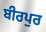
ਬੀਰਪੁਰ